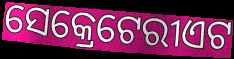
ସେକ୍ରେଟେରୀଏଟ